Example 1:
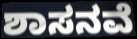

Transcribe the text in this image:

ಶಾಸನವೆ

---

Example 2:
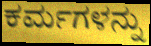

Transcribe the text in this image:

ಕರ್ಮಗಳನ್ನು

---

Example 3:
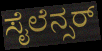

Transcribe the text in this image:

ಸೈಲೆನ್ಸರ್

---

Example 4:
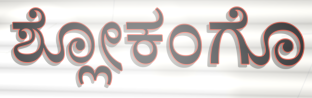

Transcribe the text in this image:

ಶ್ಲೋಕಂಗೊ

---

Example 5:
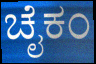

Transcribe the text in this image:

ಚೈಕಂ